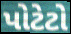
પોટેટો